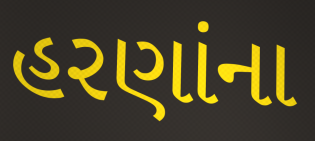
હરણાંના